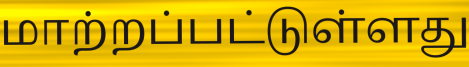
மாற்றப்பட்டுள்ளது